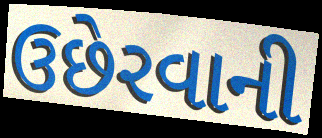
ઉછેરવાની